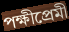
পক্ষীপ্রেমী